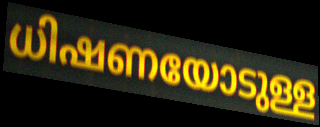
ധിഷണയോടുള്ള